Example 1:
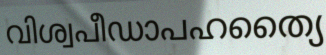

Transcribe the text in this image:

വിശ്വപീഡാപഹത്യൈ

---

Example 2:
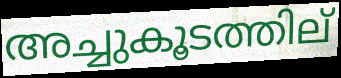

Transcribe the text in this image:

അച്ചുകൂടത്തില്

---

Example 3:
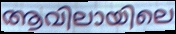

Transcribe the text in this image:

ആവിലായിലെ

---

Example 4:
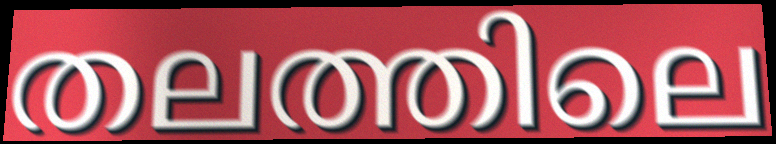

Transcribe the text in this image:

തലത്തിലെ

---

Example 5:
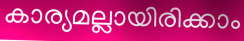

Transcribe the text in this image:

കാര്യമല്ലായിരിക്കാം